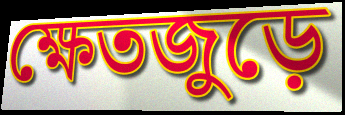
ক্ষেতজুড়ে